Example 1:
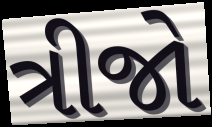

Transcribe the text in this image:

ત્રીજો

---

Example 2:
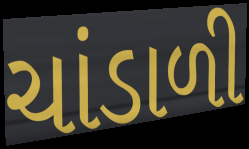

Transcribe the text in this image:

ચાંડાળી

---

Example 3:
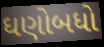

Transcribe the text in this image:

ઘણોબધો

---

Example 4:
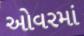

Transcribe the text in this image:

ઓવરમાં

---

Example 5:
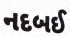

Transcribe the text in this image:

નદબઈ